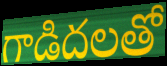
గాడిదలతో